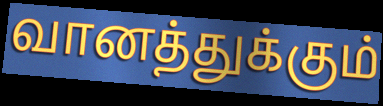
வானத்துக்கும்